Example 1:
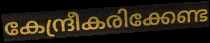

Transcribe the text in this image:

കേന്ദ്രീകരിക്കേണ്ട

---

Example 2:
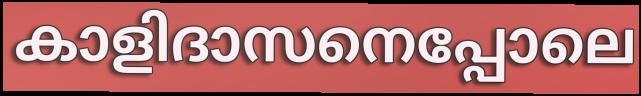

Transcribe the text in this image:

കാളിദാസനെപ്പോലെ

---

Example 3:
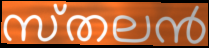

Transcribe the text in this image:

സ്‌തലൻ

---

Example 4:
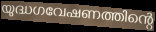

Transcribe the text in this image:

യുദ്ധഗവേഷണത്തിന്റെ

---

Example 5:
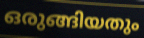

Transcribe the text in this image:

ഒരുങ്ങിയതും